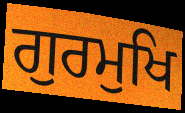
ਗੁਰਮੁਖਿ